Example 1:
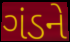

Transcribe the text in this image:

ગંડને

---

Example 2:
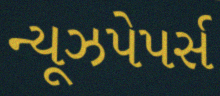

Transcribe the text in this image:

ન્યૂઝપેપર્સ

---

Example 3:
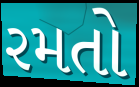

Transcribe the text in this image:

રમતો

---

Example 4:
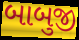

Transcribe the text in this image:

બાબુજી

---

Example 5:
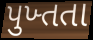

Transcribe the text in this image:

પુખ્તતા